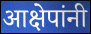
आक्षेपांनी